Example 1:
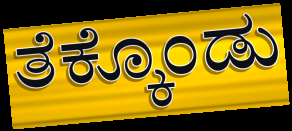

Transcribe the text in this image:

ತೆಕ್ಕೊಂಡು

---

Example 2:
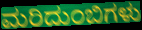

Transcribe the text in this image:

ಮರಿದುಂಬಿಗಳು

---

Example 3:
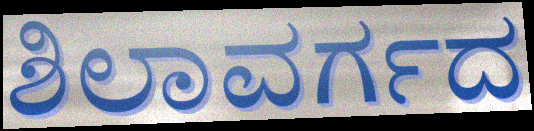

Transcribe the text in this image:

ಶಿಲಾವರ್ಗದ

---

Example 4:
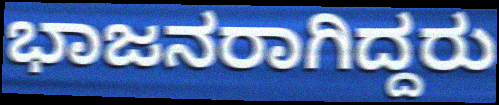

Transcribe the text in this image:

ಭಾಜನರಾಗಿದ್ದರು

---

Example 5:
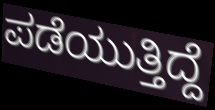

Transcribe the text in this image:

ಪಡೆಯುತ್ತಿದ್ದೆ